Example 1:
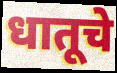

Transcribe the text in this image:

धातूचे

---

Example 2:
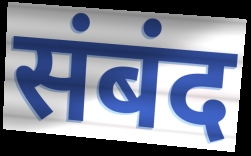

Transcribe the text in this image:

संबंद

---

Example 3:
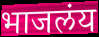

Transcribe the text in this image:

भाजलंय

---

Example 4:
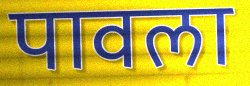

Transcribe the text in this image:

पावला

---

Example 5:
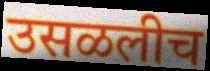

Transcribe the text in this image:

उसळलीच